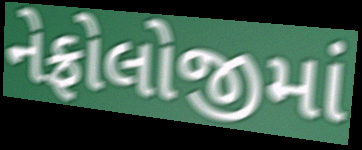
નેફ્રોલોજીમાં